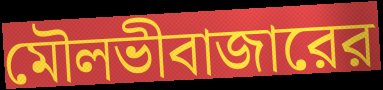
মৌলভীবাজারের